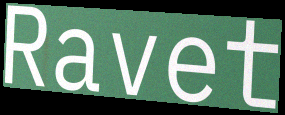
Ravet